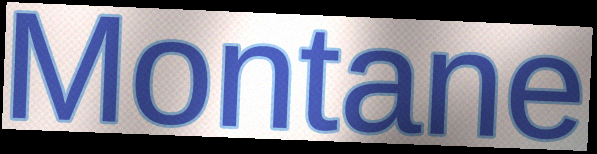
Montane